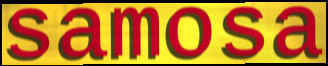
samosa